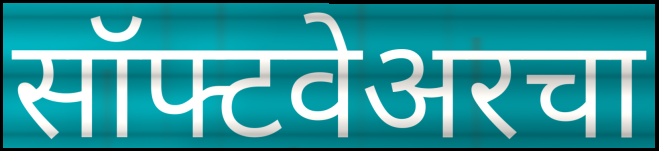
सॉफ्टवेअरचा